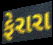
ફેરારા